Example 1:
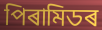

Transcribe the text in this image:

পিৰামিডৰ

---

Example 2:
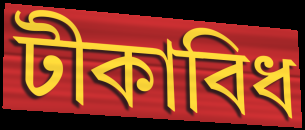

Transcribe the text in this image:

টীকাবিধ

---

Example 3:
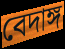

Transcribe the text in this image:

বেদাঙ্গ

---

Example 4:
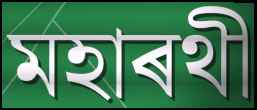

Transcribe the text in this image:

মহাৰথী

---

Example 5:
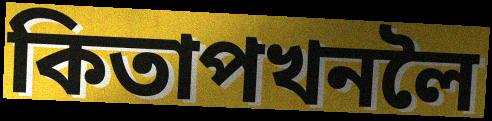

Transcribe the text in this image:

কিতাপখনলৈ